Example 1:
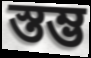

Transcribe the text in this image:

স্তম্ভ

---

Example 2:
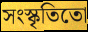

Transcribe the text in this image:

সংস্কৃতিতো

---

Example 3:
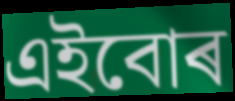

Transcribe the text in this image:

এইবোৰ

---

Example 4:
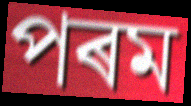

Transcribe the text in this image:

পৰম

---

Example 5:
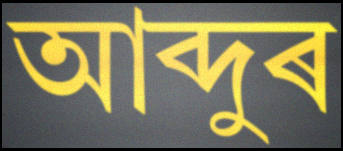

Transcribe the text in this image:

আব্দুৰ